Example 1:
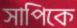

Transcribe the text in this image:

সাপিকে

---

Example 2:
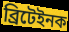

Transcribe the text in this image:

ব্ৰিটেইনক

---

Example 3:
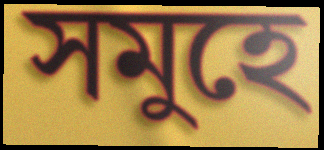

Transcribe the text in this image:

সমুহে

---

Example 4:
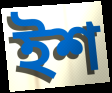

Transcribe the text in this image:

ইশ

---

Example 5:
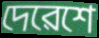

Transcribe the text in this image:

দেৱেশে